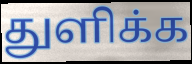
துளிக்க